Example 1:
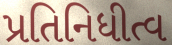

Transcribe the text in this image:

પ્રતિનિધીત્વ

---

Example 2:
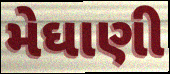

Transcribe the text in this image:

મેઘાણી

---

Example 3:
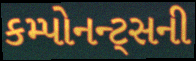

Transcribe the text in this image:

કમ્પોનન્ટ્સની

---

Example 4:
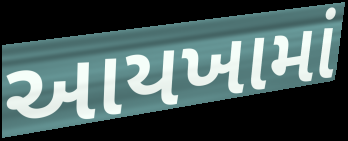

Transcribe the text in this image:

આયખામાં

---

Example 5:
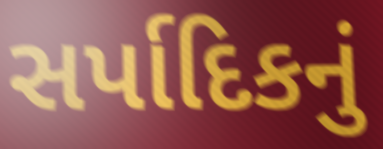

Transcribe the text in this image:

સર્પાદિકનું